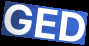
GED